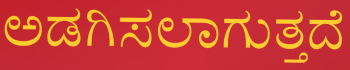
ಅಡಗಿಸಲಾಗುತ್ತದೆ